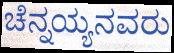
ಚೆನ್ನಯ್ಯನವರು